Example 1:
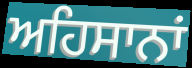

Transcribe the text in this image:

ਅਹਿਸਾਨਾਂ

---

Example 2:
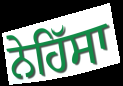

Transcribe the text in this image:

ਨੇਹਿੱਸਾ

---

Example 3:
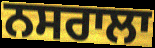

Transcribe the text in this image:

ਨਸਰਾਲਾ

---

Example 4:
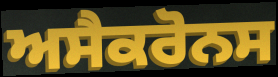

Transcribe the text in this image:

ਅਸੈਕਰੋਨਸ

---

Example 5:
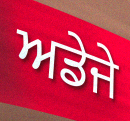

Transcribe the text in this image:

ਅਡੇਜੇ